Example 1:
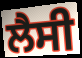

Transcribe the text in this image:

ਲੈਸੀ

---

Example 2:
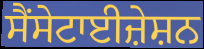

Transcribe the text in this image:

ਸੈਂਸੇਟਾਈਜ਼ੇਸ਼ਨ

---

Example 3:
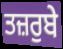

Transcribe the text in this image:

ਤਜ਼ਰੁਬੇ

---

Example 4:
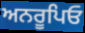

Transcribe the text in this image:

ਅਨਰੂਪਿਓ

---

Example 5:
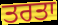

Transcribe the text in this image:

ਤਰਤਾ